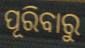
ପୂରିବାରୁ